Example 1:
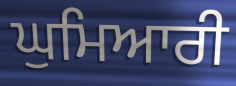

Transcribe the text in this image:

ਘੁਮਿਆਰੀ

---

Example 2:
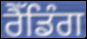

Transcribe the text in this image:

ਰੈੱਡਿੰਗ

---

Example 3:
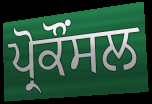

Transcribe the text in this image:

ਪ੍ਰੋਕੌਂਸਲ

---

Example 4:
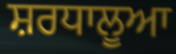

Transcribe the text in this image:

ਸ਼ਰਧਾਲੂਆ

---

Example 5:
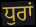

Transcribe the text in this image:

ਧੁਰਾਂ